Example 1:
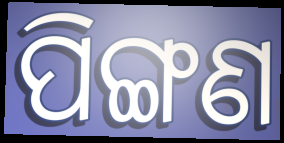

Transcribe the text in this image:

ପିଙ୍ଗଣ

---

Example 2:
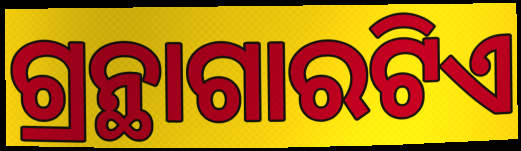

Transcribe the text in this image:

ଗ୍ରନ୍ଥାଗାରଟିଏ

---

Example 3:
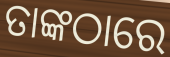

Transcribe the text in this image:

ତାଙ୍କଠାରେ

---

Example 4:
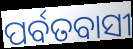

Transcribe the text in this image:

ପର୍ବତବାସୀ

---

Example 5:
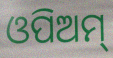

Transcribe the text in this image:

ଓପିଅମ୍